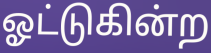
ஓட்டுகின்ற